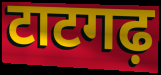
टाटगढ़